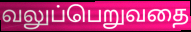
வலுப்பெறுவதை